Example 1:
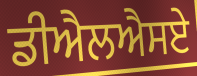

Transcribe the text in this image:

ਡੀਐਲਐਸਏ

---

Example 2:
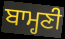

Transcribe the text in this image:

ਬਾਮ੍ਹਣੀ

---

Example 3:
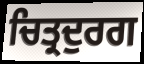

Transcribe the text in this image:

ਚਿਤ੍ਰਦੁਰਗ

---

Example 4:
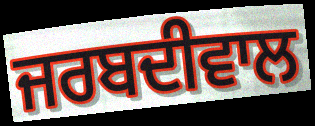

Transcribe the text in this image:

ਜਰਬਦੀਵਾਲ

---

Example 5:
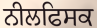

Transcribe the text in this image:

ਨੀਲਫਿਸਕ